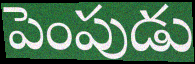
పెంపుడు